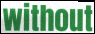
without